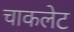
चाकलेट